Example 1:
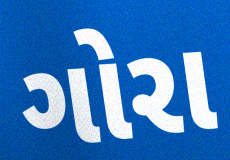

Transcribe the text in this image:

ગોરા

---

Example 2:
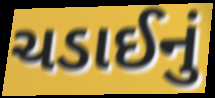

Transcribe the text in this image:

ચડાઈનું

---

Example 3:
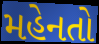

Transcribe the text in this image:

મહેનતો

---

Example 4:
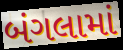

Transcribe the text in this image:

બંગલામાં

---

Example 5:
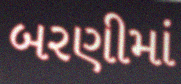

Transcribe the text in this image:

બરણીમાં